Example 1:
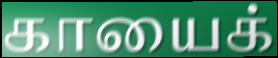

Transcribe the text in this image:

காயைக்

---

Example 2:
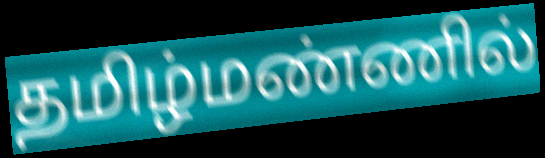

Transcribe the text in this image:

தமிழ்மண்ணில்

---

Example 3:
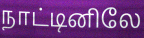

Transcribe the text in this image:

நாட்டினிலே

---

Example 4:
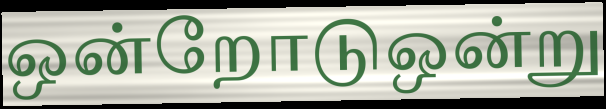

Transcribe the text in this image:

ஒன்றோடுஒன்று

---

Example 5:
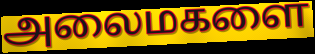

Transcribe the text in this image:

அலைமகளை